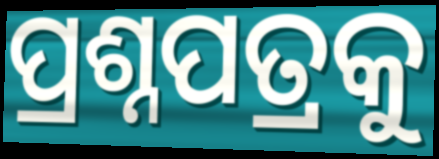
ପ୍ରଶ୍ନପତ୍ରକୁ